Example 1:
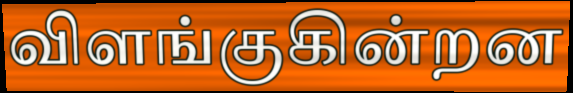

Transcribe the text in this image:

விளங்குகின்றன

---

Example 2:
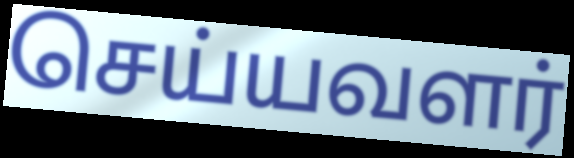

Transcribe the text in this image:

செய்யவளர்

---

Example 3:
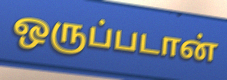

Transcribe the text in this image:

ஒருப்படான்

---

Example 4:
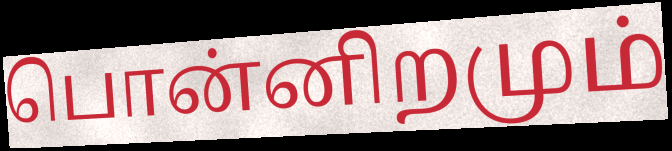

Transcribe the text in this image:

பொன்னிறமும்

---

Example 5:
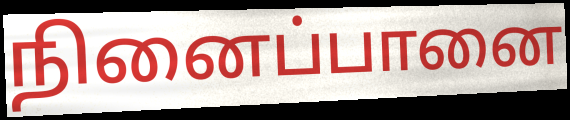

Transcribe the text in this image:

நினைப்பானை